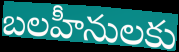
బలహీనులకు